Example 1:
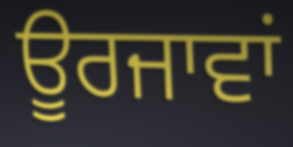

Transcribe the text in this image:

ਊਰਜਾਵਾਂ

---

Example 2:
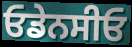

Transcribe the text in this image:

ਓਡੇਨਸੀਓ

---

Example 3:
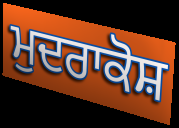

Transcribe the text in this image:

ਮੁਦਰਾਕੋਸ਼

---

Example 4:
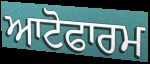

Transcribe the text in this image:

ਆਟੋਫਾਰਮ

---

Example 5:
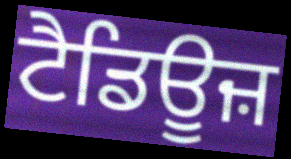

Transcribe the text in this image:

ਟੈਡਿਊਜ਼